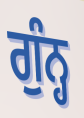
ਗੁੰਨ੍ਹ